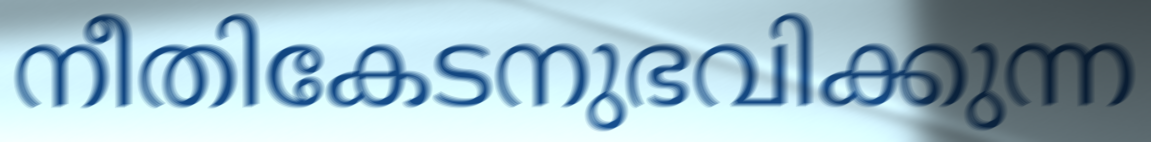
നീതികേടനുഭവിക്കുന്ന